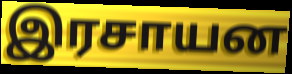
இரசாயன